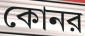
কোনর